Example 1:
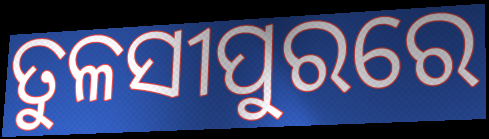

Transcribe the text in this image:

ତୁଳସୀପୁରରେ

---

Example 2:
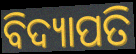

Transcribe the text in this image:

ବିଦ୍ୟାପତି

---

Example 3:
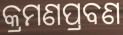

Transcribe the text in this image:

କ୍ରମଣପ୍ରବଣ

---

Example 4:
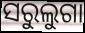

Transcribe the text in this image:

ସରୁଲୁଗା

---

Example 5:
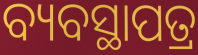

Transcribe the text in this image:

ବ୍ୟବସ୍ଥାପତ୍ର